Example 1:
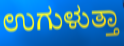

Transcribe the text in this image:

ಉಗುಳುತ್ತಾ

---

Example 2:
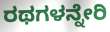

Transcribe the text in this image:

ರಥಗಳನ್ನೇರಿ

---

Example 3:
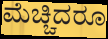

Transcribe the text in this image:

ಮೆಚ್ಚಿದರೂ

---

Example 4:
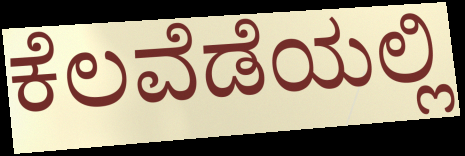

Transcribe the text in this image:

ಕೆಲವೆಡೆಯಲ್ಲಿ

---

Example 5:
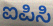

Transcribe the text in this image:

ಐಪಿಸಿ